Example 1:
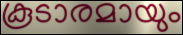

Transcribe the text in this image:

കൂടാരമായും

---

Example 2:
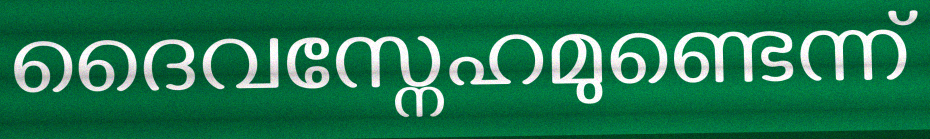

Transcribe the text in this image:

ദൈവസ്നേഹമുണ്ടെന്ന്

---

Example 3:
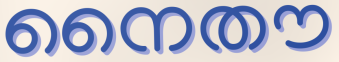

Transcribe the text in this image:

നൈതൗ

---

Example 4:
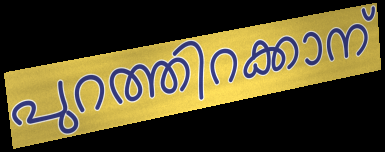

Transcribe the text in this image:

പുറത്തിറക്കാന്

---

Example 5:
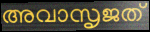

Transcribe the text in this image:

അവാസൃജത്